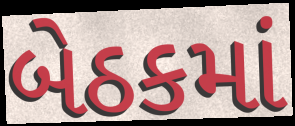
બેઠકમાં